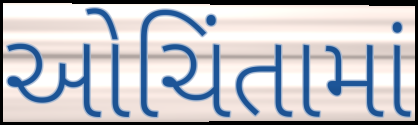
ઓચિંતામાં